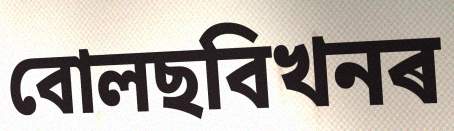
বোলছবিখনৰ